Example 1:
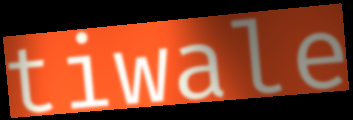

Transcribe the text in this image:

tiwale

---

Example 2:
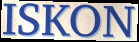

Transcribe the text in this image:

ISKON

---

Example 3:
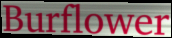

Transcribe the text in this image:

Burflower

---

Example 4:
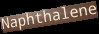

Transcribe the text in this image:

Naphthalene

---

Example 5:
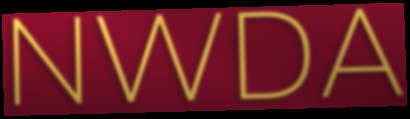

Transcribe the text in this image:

NWDA